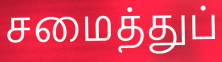
சமைத்துப்